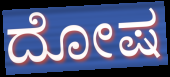
ದೋಷ